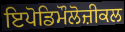
ਇਪੋਡਿਮੌਲੋਜ਼ੀਕਲ